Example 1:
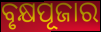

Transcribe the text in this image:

ବୃକ୍ଷପୂଜାର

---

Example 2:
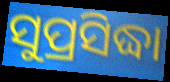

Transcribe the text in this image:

ସୁପ୍ରସିଦ୍ଧା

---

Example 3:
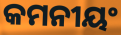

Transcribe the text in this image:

କମନୀୟଂ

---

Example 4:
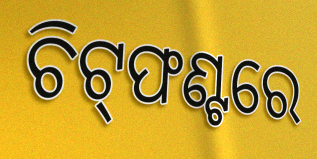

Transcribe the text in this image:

ଚିଟ୍‌ଫଣ୍ଟରେ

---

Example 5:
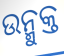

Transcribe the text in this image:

ଉନ୍ମୁକ୍ତ